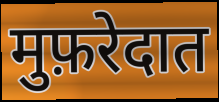
मुफ़रेदात